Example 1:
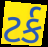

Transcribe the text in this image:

ટર્ક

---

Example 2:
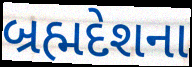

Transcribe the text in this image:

બ્રહ્મદેશના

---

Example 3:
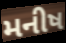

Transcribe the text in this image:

મનીષ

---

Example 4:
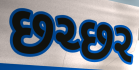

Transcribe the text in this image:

છચ્છર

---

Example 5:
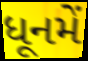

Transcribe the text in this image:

ધૂનમેં